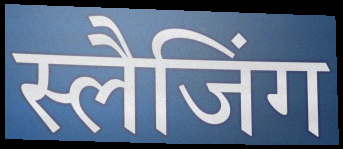
स्लैजिंग